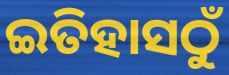
ଇତିହାସଠୁଁ